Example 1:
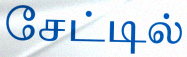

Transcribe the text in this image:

சேட்டில்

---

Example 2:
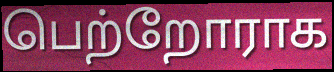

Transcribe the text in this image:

பெற்றோராக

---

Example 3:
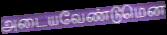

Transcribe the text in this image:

அடையவேண்டுமென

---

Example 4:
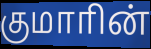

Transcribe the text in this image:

குமாரின்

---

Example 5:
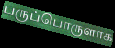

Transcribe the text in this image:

பருப்பொருளாக